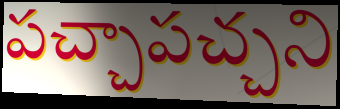
పచ్చాపచ్చని